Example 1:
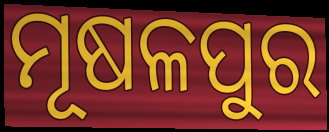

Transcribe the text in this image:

ମୂଷଳପୁର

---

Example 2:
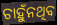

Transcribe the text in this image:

ଚାହୁଁନଥିବ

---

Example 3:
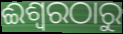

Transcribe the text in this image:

ଈଶ୍ୱରଠାରୁ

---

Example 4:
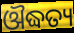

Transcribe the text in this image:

ଔଦ୍ଧତ୍ୟ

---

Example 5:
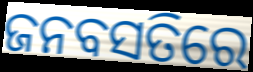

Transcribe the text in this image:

ଜନବସତିରେ